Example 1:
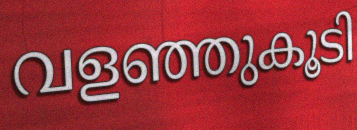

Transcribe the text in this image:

വളഞ്ഞുകൂടി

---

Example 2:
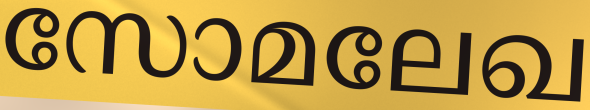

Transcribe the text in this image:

സോമലേഖ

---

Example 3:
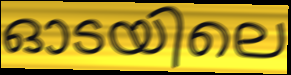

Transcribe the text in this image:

ഓടയിലെ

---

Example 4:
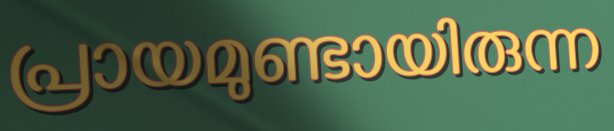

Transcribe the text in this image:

പ്രായമുണ്ടായിരുന്ന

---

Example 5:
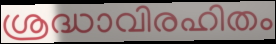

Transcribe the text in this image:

ശ്രദ്ധാവിരഹിതം